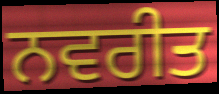
ਨਵਰੀਤ